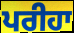
ਪਰੀਹਾ